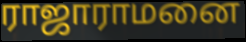
ராஜாராமனை